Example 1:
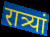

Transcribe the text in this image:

रात्र्यां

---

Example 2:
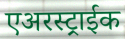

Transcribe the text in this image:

एअरस्ट्राईक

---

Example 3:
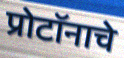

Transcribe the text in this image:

प्रोटॉनाचे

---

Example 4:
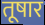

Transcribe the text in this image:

तूषार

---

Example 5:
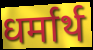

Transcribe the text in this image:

धर्मार्थ